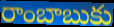
రాంబాబుకు